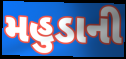
મહુડાની